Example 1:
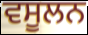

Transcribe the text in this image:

ਵਸੂਲਨ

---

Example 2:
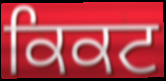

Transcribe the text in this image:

ਕਿਕਟ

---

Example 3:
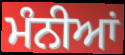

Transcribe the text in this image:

ਮੰਨੀਆਂ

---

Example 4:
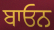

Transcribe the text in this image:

ਬਾਓਨ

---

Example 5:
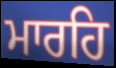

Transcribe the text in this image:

ਮਾਰਹਿ